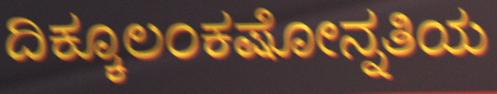
ದಿಕ್ಕೂಲಂಕಷೋನ್ನತಿಯ